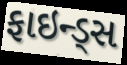
ફાઇન્ડ્સ